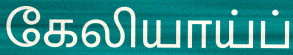
கேலியாய்ப்